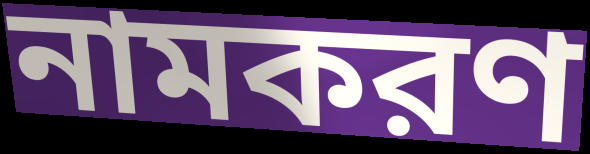
নামকরণ